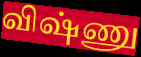
விஷ்ணு